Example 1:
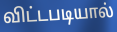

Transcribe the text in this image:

விட்டபடியால்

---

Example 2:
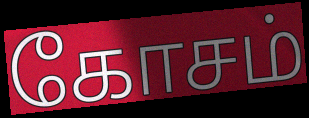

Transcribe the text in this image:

கோசம்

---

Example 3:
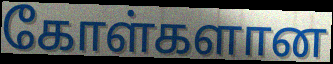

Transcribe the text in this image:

கோள்களான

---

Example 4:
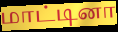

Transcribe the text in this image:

மாட்டினா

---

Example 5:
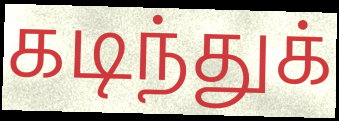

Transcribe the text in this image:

கடிந்துக்